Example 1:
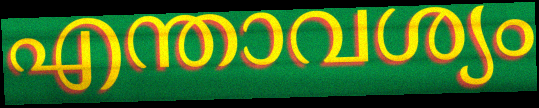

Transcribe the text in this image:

എന്താവശ്യം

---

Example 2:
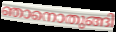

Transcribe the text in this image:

ഞാനൊതുങ്ങി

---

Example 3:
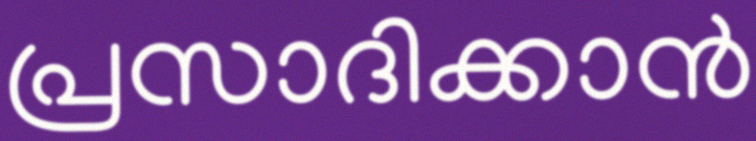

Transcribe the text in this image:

പ്രസാദിക്കാൻ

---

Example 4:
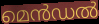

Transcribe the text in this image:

മെൻഡൽ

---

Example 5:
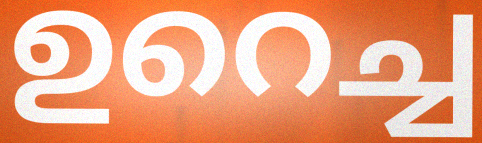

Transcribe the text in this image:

ഉറെച്ച